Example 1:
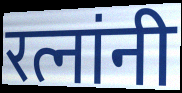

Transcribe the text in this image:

रत्नांनी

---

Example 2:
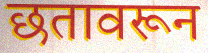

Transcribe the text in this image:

छतावरून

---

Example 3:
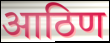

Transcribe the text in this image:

आठिण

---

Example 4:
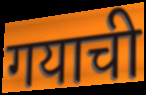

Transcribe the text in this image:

गयाची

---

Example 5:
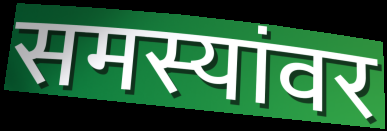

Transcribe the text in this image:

समस्यांवर